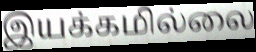
இயக்கமில்லை